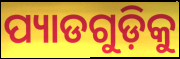
ପ୍ୟାଡଗୁଡ଼ିକୁ